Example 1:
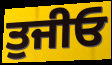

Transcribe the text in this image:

ਤੁਜੀਓ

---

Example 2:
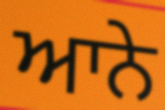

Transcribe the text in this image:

ਆਨੇ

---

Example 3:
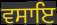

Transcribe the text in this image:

ਵਸਾਇ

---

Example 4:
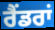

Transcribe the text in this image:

ਰੈਂਡਰਾਂ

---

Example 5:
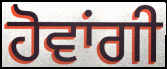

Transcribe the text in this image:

ਹੋਵਾਂਗੀ